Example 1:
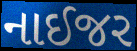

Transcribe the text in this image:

નાઈજર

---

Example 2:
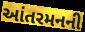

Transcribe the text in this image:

આંતરમનની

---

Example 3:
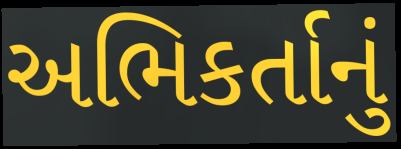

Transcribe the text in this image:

અભિકર્તાનું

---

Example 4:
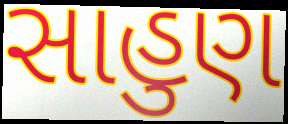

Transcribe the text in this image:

સાહુણ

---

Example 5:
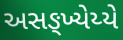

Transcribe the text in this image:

અસઙ્ખ્યેય્યે